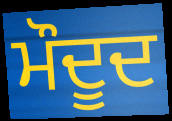
ਮੌਦੂਦ